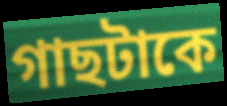
গাছটাকে